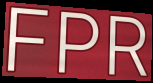
FPR